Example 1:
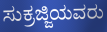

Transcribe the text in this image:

ಸುಕ್ರಜ್ಜಿಯವರು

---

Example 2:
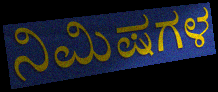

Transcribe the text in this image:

ನಿಮಿಷಗಳ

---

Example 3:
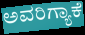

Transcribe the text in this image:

ಅವರಿಗ್ಯಾಕೆ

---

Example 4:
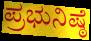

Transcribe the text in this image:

ಪ್ರಭುನಿಷ್ಠೆ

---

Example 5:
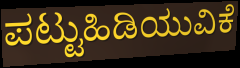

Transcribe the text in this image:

ಪಟ್ಟುಹಿಡಿಯುವಿಕೆ